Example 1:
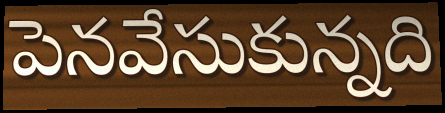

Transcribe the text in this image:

పెనవేసుకున్నది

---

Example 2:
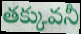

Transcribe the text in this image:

తక్కువనీ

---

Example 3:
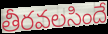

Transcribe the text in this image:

తీరవలసిందే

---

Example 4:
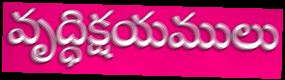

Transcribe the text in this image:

వృద్ధిక్షయములు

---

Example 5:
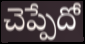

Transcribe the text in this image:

చెప్పేదో